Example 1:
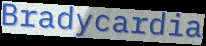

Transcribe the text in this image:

Bradycardia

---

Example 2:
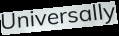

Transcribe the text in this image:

Universally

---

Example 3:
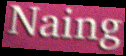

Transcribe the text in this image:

Naing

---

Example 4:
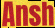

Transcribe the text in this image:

Ansh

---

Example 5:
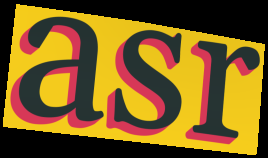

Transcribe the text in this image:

asr